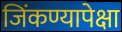
जिंकण्यापेक्षा